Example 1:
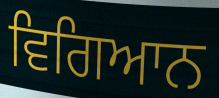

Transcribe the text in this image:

ਵਿਗਿਆਨ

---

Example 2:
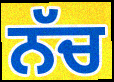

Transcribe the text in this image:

ਨੱਚ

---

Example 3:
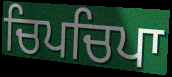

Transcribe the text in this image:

ਚਿਪਚਿਪਾ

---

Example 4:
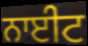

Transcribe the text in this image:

ਨਾਈਟ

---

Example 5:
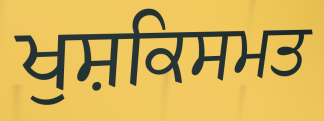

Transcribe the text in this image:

ਖੁਸ਼ਕਿਸਮਤ